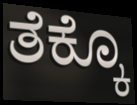
ತೆಕ್ಕೊ